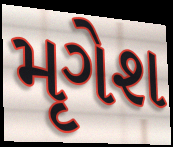
મૃગેશ